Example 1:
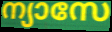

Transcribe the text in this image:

ന്യാസേ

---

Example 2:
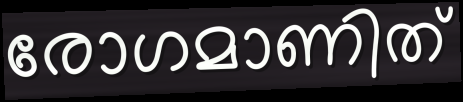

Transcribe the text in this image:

രോഗമാണിത്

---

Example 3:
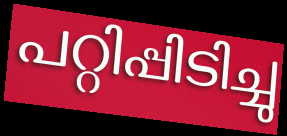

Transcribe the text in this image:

പറ്റിപ്പിടിച്ചു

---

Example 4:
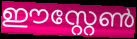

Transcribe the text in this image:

ഈസ്റ്റേൺ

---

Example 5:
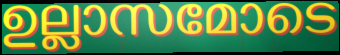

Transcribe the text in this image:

ഉല്ലാസമോടെ